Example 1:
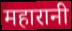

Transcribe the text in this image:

महारानी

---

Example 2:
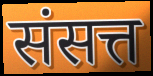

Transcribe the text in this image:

संसत्त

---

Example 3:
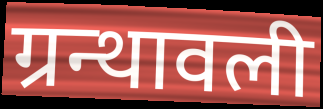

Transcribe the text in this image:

ग्रन्थावली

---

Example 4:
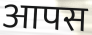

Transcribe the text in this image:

आपस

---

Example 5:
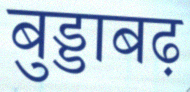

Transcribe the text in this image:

बुड्डाबढ़